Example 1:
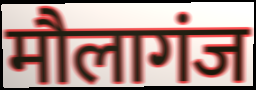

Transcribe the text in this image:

मौलागंज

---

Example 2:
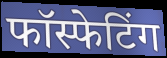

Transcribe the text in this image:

फॉस्फेटिंग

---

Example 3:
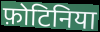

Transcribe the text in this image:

फ़ोटिनिया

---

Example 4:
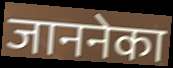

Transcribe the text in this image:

जाननेका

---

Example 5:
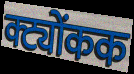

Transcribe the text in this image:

क्ट्योंकक